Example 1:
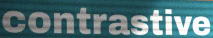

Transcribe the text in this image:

contrastive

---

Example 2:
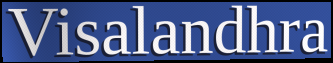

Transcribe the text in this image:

Visalandhra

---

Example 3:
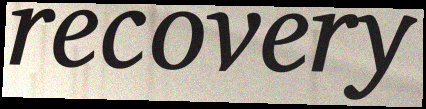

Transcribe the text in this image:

recovery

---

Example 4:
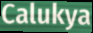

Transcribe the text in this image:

Calukya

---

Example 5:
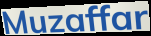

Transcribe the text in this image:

Muzaffar